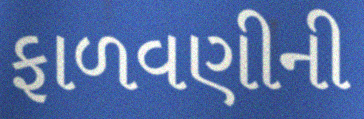
ફાળવણીની